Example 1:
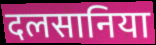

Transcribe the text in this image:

दलसानिया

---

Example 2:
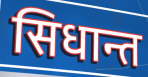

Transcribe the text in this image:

सिधान्त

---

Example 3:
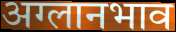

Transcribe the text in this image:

अग्लानभाव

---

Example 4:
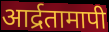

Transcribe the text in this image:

आर्द्रतामापी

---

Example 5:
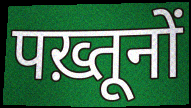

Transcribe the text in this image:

पख़्तूनों